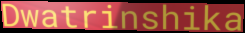
Dwatrinshika